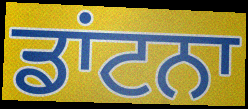
ਡਾਂਟਨਾ